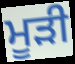
ਮੂੜੀ